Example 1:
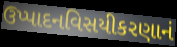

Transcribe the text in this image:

ઉપ્પાદનવિસયીકરણાનં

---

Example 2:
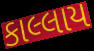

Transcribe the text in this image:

કાલ્લાય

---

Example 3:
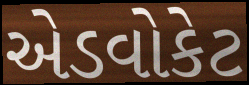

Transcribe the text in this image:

એડવોકેટ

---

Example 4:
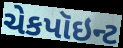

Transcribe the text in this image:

ચેકપૉઇન્ટ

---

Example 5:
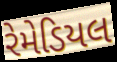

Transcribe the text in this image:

રેમેડિયલ